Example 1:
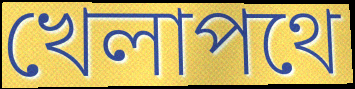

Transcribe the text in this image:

খেলাপথে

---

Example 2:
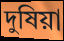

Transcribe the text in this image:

দুষিয়া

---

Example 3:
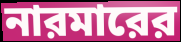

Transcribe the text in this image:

নারমারের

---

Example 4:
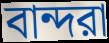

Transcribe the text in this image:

বান্দরা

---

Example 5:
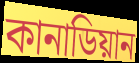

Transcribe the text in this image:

কানাডিয়ান